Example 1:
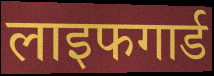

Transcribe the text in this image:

लाइफगार्ड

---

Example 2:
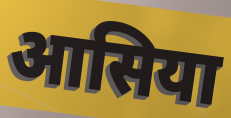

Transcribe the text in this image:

आसिया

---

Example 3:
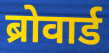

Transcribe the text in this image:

ब्रोवार्ड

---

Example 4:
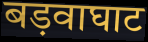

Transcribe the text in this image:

बड़वाघाट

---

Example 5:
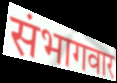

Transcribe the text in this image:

संभागवार